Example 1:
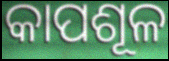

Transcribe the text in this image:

କାପଶୂଳ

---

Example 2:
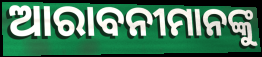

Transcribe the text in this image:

ଆରାବନୀମାନଙ୍କୁ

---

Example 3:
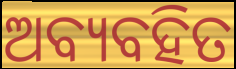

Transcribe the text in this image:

ଅବ୍ୟବହିତ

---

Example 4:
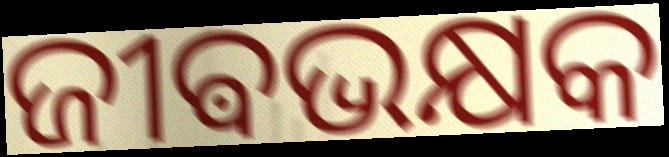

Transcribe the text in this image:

ଜୀଵଭକ୍ଷକ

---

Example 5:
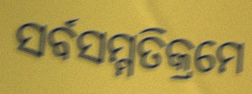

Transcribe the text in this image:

ସର୍ବସମ୍ମତିକ୍ରମେ